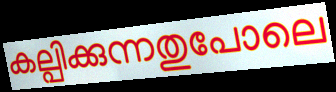
കല്പിക്കുന്നതുപോലെ